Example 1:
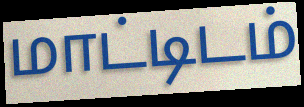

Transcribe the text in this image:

மாட்டிடம்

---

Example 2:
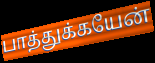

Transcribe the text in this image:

பாத்துக்கயேன்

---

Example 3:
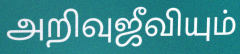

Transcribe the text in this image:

அறிவுஜீவியும்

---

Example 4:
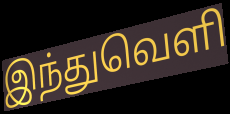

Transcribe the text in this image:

இந்துவெளி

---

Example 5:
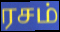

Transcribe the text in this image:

ரசம்